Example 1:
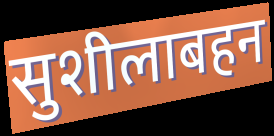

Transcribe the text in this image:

सुशीलाबहन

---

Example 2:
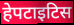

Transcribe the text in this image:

हेपटाइटिस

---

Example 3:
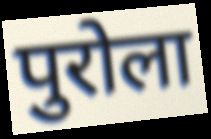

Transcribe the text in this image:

पुरोला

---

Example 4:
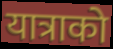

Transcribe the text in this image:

यात्राको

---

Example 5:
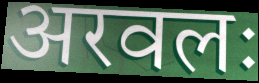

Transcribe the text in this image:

अरवलः